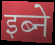
इब्ने